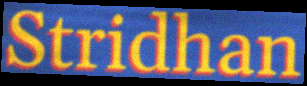
Stridhan